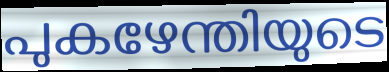
പുകഴേന്തിയുടെ